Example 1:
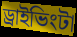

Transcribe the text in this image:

ড্রাইভিংটা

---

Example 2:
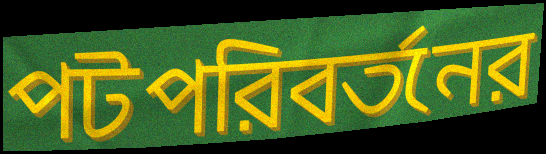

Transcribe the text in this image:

পটপরিবর্তনের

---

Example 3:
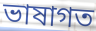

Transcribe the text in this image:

ভাষাগত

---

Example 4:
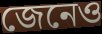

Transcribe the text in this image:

জেনেও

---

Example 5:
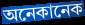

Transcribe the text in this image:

অনেকানেক